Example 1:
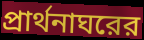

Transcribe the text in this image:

প্রার্থনাঘরের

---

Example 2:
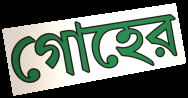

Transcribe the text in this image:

গোহের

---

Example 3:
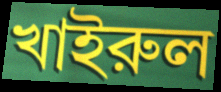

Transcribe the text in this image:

খাইরুল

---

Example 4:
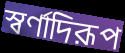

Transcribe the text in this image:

স্বর্ণাদিরূপ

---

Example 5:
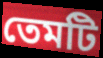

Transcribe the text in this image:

তেমটি